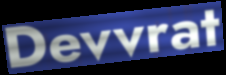
Devvrat